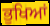
ਭੁਖਿਆਂ